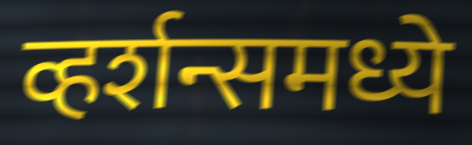
व्हर्शन्समध्ये